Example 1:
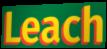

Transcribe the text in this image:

Leach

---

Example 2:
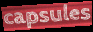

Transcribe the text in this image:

capsules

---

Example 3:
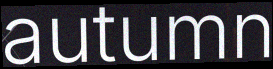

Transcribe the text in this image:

autumn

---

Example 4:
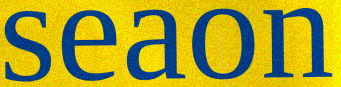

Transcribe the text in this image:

seaon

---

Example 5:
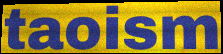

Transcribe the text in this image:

taoism